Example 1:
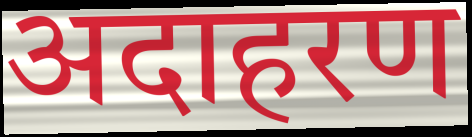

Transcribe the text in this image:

अदाहरण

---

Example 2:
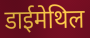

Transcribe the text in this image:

डाईमेथिल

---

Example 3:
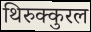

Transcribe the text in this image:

थिरुक्कुरल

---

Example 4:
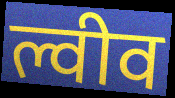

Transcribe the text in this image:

ल्वीव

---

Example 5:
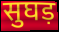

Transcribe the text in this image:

सुघड़